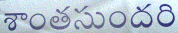
శాంతసుందరి